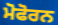
ਮੋਫੋਰਨ